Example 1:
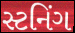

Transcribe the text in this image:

સ્ટનિંગ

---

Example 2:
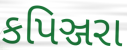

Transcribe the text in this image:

કપિઞ્જરા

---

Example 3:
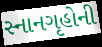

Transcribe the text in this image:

સ્નાનગૃહોની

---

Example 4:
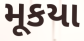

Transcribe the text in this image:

મૂકયા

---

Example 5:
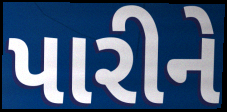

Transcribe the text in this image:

પારીને